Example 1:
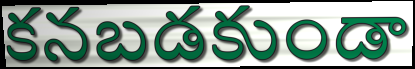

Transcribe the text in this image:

కనబడకుండా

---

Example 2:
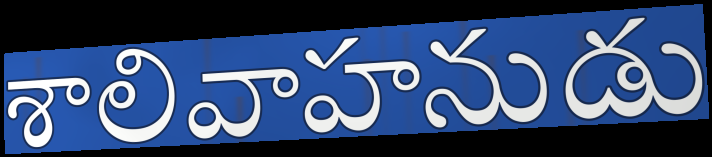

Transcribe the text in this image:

శాలివాహనుడు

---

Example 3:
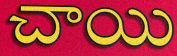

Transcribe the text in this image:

చాయి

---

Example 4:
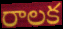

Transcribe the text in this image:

రాలక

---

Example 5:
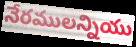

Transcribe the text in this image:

నేరములన్నియు